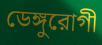
ডেঙ্গুরোগী